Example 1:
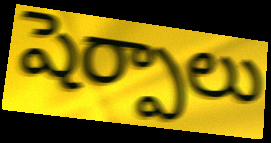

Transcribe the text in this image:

షెర్పాలు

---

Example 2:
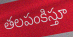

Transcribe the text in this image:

తలపంకిస్తూ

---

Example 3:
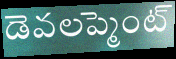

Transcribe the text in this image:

డెవలప్మెంట్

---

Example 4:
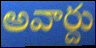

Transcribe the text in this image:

అవార్దు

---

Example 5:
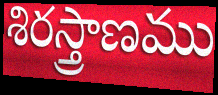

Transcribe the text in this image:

శిరస్త్రాణము